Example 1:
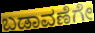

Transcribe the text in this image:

ಬಡಾವಣೆಗೇ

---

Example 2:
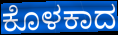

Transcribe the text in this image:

ಕೊಳಕಾದ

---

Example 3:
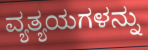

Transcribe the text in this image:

ವ್ಯತ್ಯಯಗಳನ್ನು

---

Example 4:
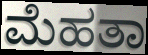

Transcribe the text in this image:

ಮೆಹತಾ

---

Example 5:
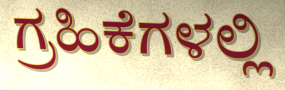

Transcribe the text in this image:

ಗ್ರಹಿಕೆಗಳಲ್ಲಿ